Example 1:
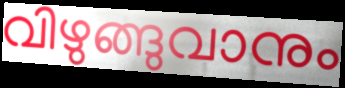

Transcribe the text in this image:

വിഴുങ്ങുവാനും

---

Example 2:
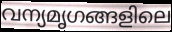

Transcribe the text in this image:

വന്യമൃഗങ്ങളിലെ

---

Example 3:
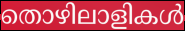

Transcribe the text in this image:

തൊഴിലാളികൾ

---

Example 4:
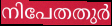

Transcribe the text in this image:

നിപേതതുർ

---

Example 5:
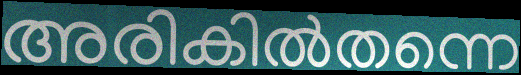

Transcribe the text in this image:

അരികിൽതന്നെ